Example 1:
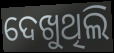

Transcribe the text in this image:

ଦେଖୁଥିଲି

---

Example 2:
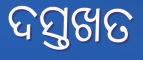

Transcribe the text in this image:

ଦସ୍ତଖତ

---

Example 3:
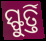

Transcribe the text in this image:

ସ୍ଫୁର୍ତ୍ତି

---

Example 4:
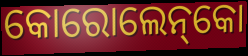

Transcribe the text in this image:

କୋରୋଲେନ୍‌କୋ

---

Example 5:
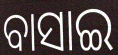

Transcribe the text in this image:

ବାସାଇ